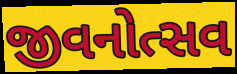
જીવનોત્સવ